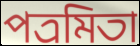
পত্রমিতা